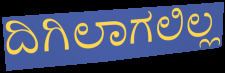
ದಿಗಿಲಾಗಲಿಲ್ಲ